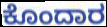
ಕೊಂದಾರ